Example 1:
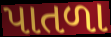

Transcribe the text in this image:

પાતળા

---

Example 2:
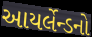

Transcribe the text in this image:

આયર્લેન્ડનો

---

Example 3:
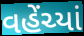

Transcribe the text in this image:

વહેંચ્યાં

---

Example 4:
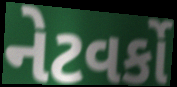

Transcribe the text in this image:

નેટવર્કો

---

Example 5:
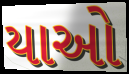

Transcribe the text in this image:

યાઓ